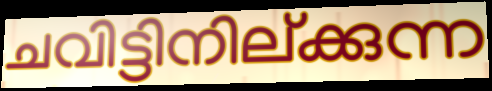
ചവിട്ടിനില്ക്കുന്ന